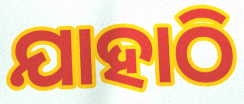
ଯାହାଠି